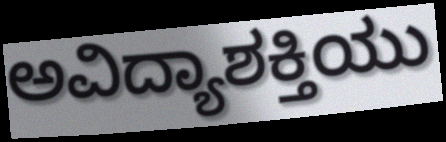
ಅವಿದ್ಯಾಶಕ್ತಿಯು